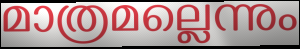
മാത്രമല്ലെന്നും